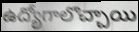
ఉద్యోగాలొచ్చాయి